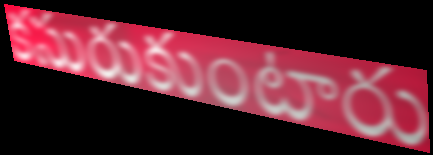
కసురుకుంటారు